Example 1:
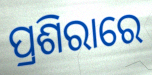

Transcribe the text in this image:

ପ୍ରଶିରାରେ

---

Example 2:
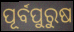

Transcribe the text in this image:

ପୂର୍ବପୁରୁଷ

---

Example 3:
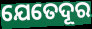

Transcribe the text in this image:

ଯେତେଦୂର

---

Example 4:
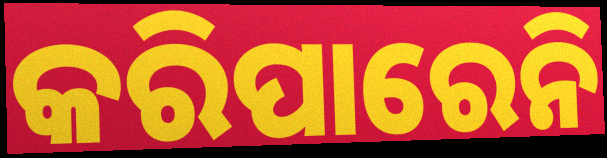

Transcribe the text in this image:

କରିପାରେନି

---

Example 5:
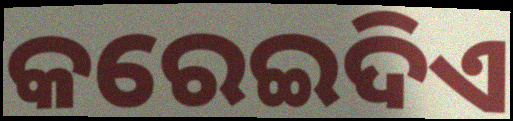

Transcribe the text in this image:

କରେଇଦିଏ